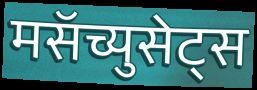
मसॅच्युसेट्स